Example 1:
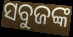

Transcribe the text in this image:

ସବୁଜଙ୍କ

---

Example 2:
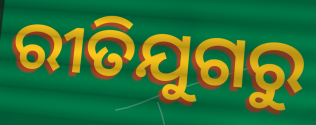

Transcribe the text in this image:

ରୀତିଯୁଗରୁ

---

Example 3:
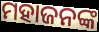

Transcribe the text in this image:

ମହାଜନଙ୍କ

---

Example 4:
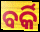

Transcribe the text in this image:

ବର୍କି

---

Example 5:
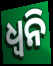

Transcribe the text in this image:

ଧ୍ବନି